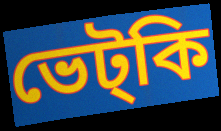
ভেট্কি